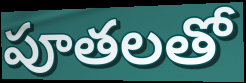
పూతలతో